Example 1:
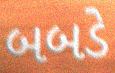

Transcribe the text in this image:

બબડે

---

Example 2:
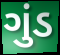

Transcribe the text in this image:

ગુંડ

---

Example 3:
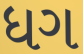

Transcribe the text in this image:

ધગ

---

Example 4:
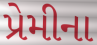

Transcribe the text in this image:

પ્રેમીના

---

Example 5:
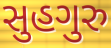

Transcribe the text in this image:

સુહગુરુ